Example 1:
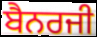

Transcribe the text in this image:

ਬੈਨਰਜੀ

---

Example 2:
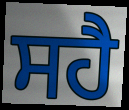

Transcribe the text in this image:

ਸਹੈ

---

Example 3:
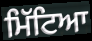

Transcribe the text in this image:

ਮਿੱਟਿਆ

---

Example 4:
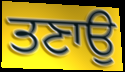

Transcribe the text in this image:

ਤਣਾਉ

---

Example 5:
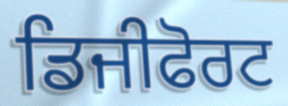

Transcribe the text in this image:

ਡਿਜੀਫੋਰਟ